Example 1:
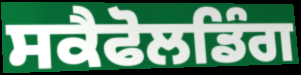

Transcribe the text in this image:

ਸਕੈਫੋਲਡਿੰਗ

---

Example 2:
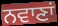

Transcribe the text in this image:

ਨਵਾਣਾਂ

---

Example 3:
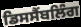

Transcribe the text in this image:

ਡਿਸਸੈਂਬਲਿੰਗ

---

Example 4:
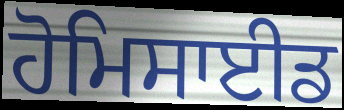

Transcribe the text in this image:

ਹੋਮਿਸਾਈਡ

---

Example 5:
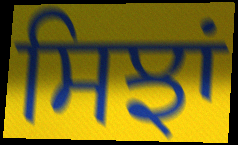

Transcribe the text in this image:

ਸਿਝਾਂ